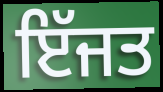
ਇੱਜਤ